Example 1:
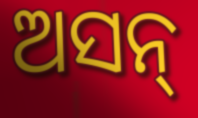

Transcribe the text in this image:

ଅସନ୍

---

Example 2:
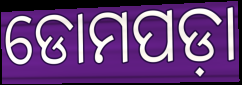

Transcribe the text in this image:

ଡୋମପଡ଼ା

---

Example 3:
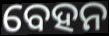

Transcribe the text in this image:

ବେହନ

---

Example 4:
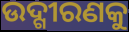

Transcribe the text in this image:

ଉଦ୍ଗୀରଣକୁ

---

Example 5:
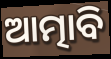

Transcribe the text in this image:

ଆତ୍ମାବି